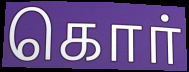
கொர்